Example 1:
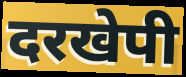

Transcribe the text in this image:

दरखेपी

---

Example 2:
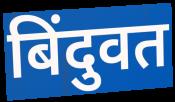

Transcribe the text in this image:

बिंदुवत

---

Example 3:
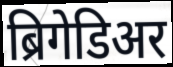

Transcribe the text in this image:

ब्रिगेडिअर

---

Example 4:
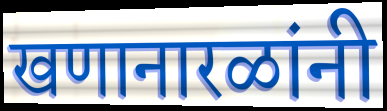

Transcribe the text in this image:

खणानारळांनी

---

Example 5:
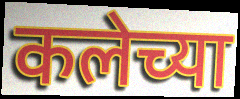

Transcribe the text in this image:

कलेच्या